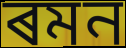
ৰমন